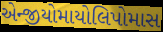
એન્જીયોમાયોલિપોમાસ